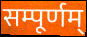
सम्पूर्णम्